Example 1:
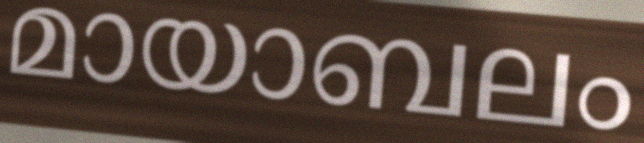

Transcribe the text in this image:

മായാബലം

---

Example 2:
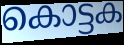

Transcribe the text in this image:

കൊട്ടക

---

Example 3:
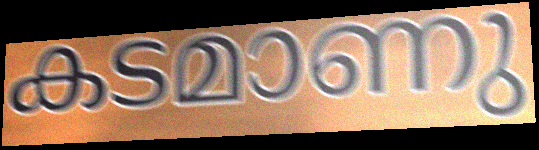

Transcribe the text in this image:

കടമാണു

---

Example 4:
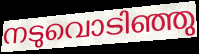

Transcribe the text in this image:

നടുവൊടിഞ്ഞു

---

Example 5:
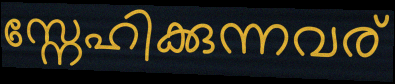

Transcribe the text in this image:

സ്നേഹിക്കുന്നവര്